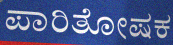
ಪಾರಿತೋಷಕ